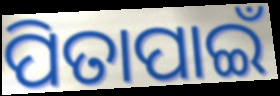
ପିତାପାଇଁ